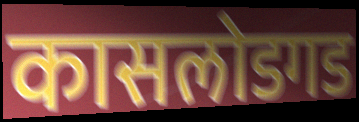
कासलोडगड